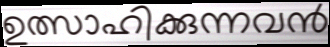
ഉത്സാഹിക്കുന്നവൻ